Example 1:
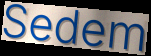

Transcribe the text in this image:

Sedem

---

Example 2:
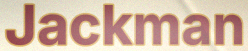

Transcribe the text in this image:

Jackman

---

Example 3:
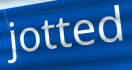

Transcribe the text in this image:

jotted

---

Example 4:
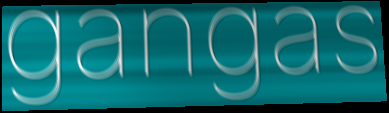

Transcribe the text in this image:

gangas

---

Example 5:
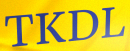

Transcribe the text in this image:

TKDL